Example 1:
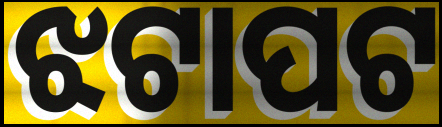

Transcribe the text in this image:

ଝଟାପଟ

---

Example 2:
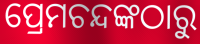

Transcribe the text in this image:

ପ୍ରେମଚନ୍ଦଙ୍କଠାରୁ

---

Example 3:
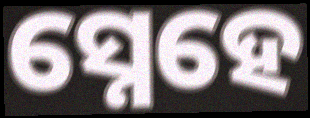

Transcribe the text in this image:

ସ୍ନେହେ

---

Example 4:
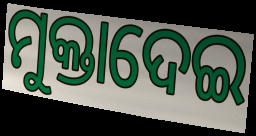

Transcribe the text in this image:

ମୁକ୍ତାଦେଇ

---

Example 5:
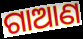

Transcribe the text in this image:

ଗାଆଣ